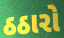
ઠઠારો